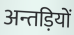
अन्तड़ियों